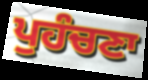
ਪੁਹੰਚਣਾ